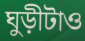
ঘুড়ীটাও